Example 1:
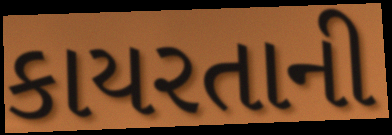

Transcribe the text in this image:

કાયરતાની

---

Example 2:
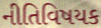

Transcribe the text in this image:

નીતિવિષયક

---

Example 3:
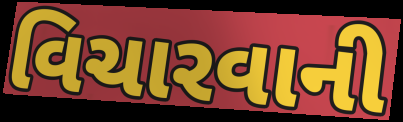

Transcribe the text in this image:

વિચારવાની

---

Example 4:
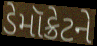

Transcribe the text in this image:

ડેમૉક્રેટને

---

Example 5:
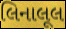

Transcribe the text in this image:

લિનાલૂલ